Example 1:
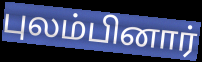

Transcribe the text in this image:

புலம்பினார்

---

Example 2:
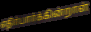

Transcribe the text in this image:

எதிர்பார்க்கின்றாள்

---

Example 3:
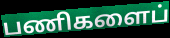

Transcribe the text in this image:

பணிகளைப்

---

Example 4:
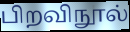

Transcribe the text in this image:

பிறவிநூல்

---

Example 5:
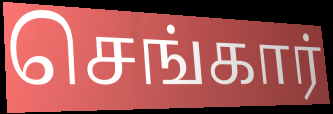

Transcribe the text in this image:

செங்கார்